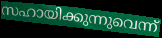
സഹായിക്കുന്നുവെന്ന്